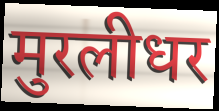
मुरलीधर